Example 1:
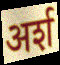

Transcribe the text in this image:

अर्श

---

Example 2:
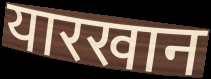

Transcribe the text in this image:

यारखान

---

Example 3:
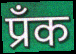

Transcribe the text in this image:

प्रँक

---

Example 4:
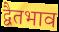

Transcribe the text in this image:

द्वैतभाव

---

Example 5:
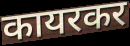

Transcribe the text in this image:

कायरकर